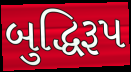
બુદ્ધિરૂપ